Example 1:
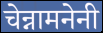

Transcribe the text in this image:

चेन्नामनेनी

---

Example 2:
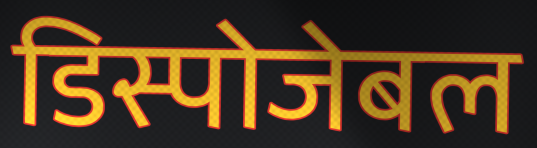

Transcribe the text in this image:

डिस्पोजेबल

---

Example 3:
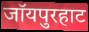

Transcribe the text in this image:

जॉयपुरहाट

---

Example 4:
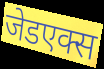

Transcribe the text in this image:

जेडएक्स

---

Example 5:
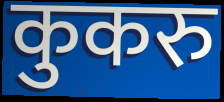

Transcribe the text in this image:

कुकरु